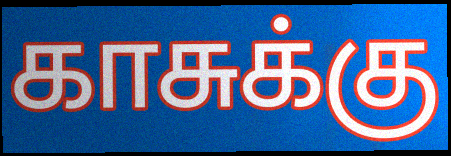
காசுக்கு